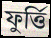
ফুৰ্ত্তি